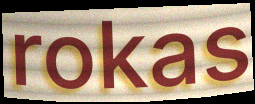
rokas